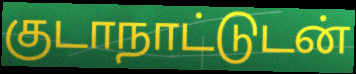
குடாநாட்டுடன்